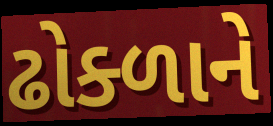
ઢોક્ળાને